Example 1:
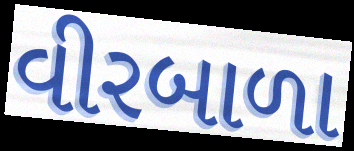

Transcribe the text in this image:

વીરબાળા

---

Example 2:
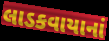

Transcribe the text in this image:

લાડકવાયાનાં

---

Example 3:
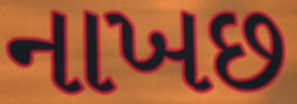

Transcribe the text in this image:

નાખછ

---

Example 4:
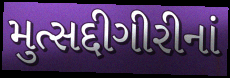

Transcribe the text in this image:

મુત્સદ્દીગીરીનાં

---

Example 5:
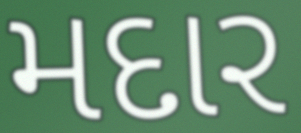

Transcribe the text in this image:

મદાર